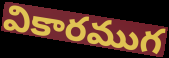
వికారముగ